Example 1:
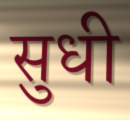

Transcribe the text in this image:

सुधी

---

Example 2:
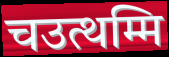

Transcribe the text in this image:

चउत्थम्मि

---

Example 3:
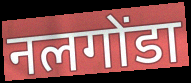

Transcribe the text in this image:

नलगोंडा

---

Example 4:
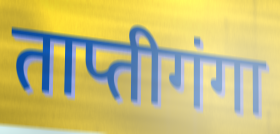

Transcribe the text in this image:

ताप्तीगंगा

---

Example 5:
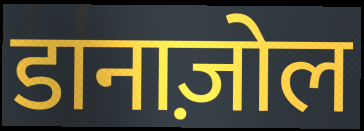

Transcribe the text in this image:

डानाज़ोल